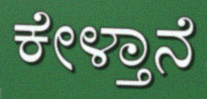
ಕೇಳ್ತಾನೆ